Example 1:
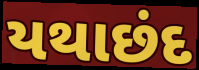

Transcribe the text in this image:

યથાછંદ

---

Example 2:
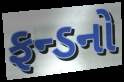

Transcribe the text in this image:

ફન્ડનો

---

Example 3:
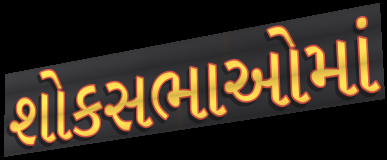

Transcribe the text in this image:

શોકસભાઓમાં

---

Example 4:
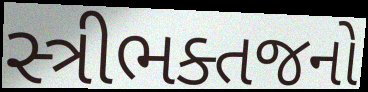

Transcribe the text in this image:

સ્ત્રીભક્તજનો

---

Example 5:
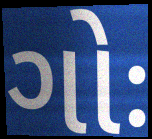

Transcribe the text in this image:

ગોઃ